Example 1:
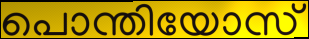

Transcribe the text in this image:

പൊന്തിയോസ്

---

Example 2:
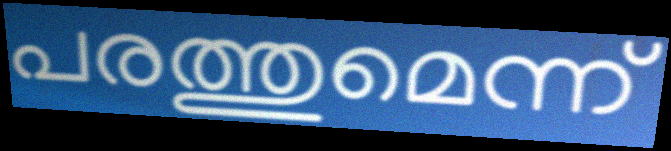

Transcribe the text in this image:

പരത്തുമെന്ന്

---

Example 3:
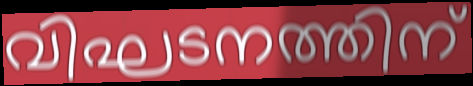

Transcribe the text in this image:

വിഘടനത്തിന്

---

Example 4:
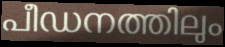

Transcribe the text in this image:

പീഡനത്തിലും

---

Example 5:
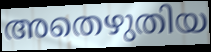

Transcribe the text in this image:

അതെഴുതിയ